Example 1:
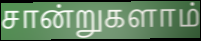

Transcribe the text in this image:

சான்றுகளாம்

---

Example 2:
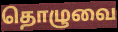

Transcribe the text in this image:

தொழுவை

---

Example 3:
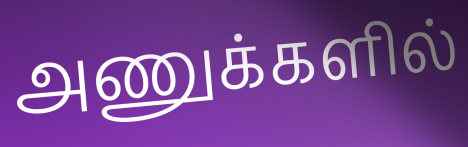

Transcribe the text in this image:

அணுக்களில்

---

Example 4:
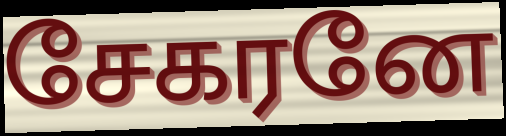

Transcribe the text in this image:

சேகரனே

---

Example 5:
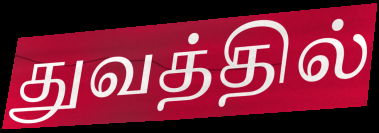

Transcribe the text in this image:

துவத்தில்